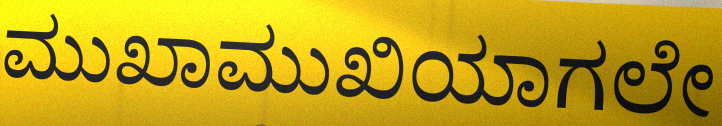
ಮುಖಾಮುಖಿಯಾಗಲೇ